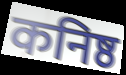
कनिष्ठ